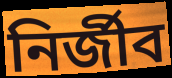
নিৰ্জীব